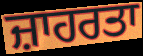
ਜ਼ਾਹਰਤਾ